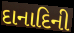
દાનાદિની